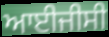
ਆਈਜੀਸੀ